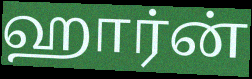
ஹார்ன்